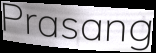
Prasang